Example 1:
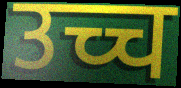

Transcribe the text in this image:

उच्च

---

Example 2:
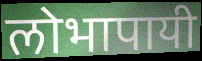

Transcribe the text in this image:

लोभापायी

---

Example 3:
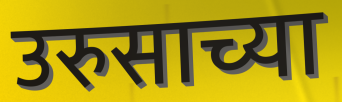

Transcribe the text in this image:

उरुसाच्या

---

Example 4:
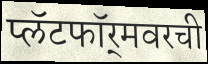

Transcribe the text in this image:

प्लॅटफॉर्मवरची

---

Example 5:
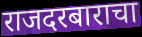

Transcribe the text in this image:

राजदरबाराचा